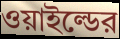
ওয়াইল্ডের